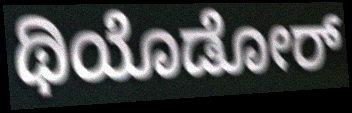
ಥಿಯೊಡೋರ್